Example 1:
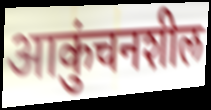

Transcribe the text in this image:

आकुंचनशील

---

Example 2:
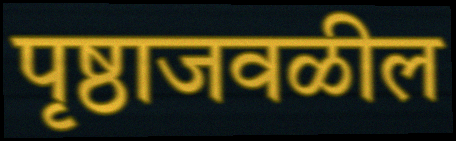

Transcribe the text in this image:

पृष्ठाजवळील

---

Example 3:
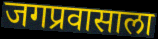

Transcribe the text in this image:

जगप्रवासाला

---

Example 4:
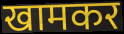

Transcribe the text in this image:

खामकर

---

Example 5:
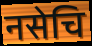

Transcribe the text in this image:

नसेचि